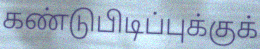
கண்டுபிடிப்புக்குக்